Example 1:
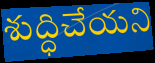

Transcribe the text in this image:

శుద్ధిచేయని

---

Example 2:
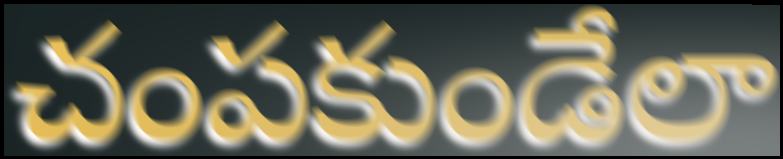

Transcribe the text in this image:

చంపకుండేలా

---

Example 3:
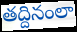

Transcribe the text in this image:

తద్దినంలా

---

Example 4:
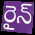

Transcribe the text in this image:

రైన్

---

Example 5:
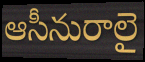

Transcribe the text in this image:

ఆసీనురాలై